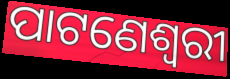
ପାଟଣେଶ୍ୱରୀ